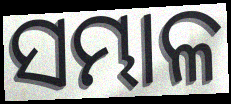
ସମ୍ଭାଳ